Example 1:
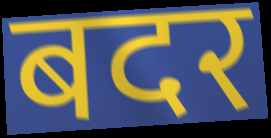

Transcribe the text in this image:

बदर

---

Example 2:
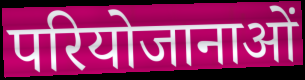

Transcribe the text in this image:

परियोजानाओं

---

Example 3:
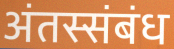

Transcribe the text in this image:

अंतस्संबंध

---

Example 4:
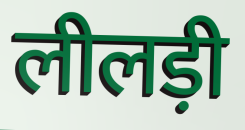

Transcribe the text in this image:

लीलड़ी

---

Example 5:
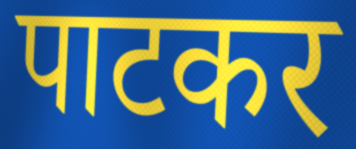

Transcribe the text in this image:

पाटकर